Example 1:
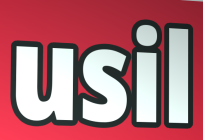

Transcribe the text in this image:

usil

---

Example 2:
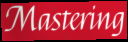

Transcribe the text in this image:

Mastering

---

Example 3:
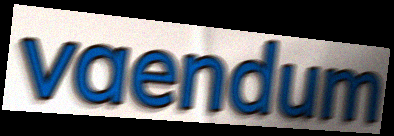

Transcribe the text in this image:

vaendum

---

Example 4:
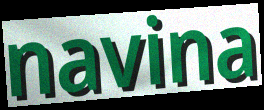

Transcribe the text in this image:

navina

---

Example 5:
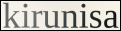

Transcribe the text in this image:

kirunisa